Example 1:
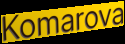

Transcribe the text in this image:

Komarova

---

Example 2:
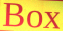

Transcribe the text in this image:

Box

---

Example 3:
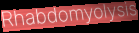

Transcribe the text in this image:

Rhabdomyolysis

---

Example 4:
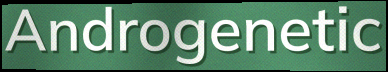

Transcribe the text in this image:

Androgenetic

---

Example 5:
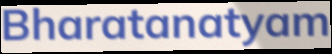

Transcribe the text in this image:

Bharatanatyam